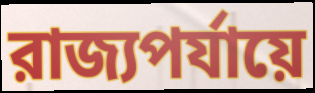
রাজ্যপর্যায়ে